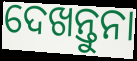
ଦେଖନ୍ତୁନା